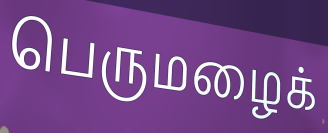
பெருமழைக்